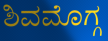
ಶಿವಮೊಗ್ಗ